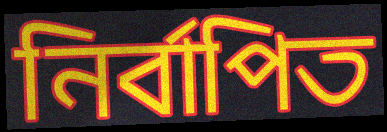
নিৰ্বাপিত